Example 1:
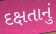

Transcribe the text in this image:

દક્ષતાનું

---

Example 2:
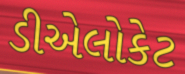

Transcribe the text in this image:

ડીએલોકેટ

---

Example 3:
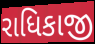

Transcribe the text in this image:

રાધિકાજી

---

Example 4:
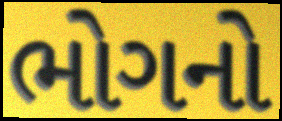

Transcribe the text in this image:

ભોગનો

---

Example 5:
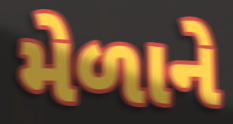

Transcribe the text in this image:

મેળાને